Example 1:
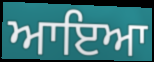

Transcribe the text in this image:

ਆਇਆ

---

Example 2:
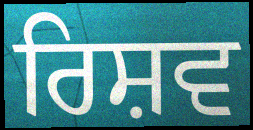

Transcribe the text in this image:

ਰਿਸ਼ਵ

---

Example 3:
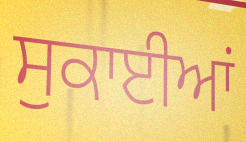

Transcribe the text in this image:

ਸੁਕਾਈਆਂ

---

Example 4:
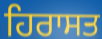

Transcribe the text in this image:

ਹਿਰਾਸਤ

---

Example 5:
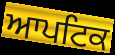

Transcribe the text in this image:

ਆਪਟਿਕ